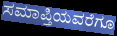
ಸಮಾಪ್ತಿಯವರೆಗೂ